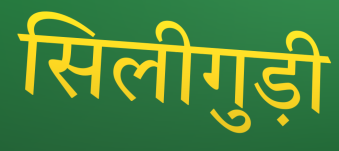
सिलीगुड़ी